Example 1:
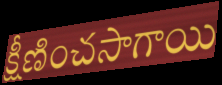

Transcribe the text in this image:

క్షీణించసాగాయి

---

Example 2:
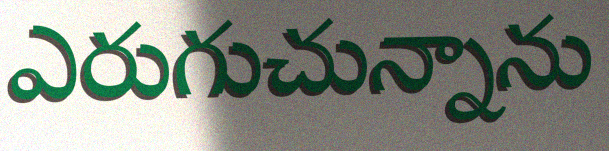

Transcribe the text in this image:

ఎరుగుచున్నాను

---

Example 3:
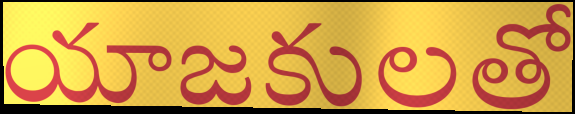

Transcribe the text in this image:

యాజకులతో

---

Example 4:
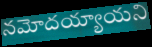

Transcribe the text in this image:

నమోదయ్యాయని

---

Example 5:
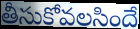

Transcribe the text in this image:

తీసుకోవలసిందే